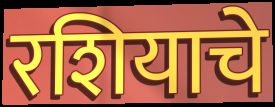
रशियाचे